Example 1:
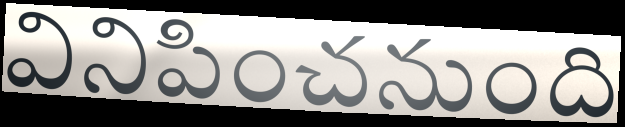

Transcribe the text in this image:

వినిపించనుంది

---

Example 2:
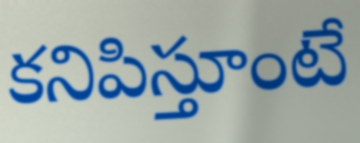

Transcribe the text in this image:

కనిపిస్తూంటే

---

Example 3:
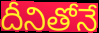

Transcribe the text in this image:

దీనితోనే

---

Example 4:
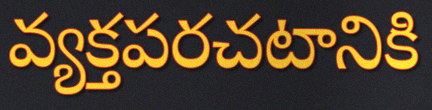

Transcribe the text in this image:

వ్యక్తపరచటానికి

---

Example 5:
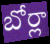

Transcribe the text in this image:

బోర్లా